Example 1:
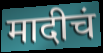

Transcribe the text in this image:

मादीचं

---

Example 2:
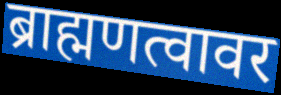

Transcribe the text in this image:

ब्राह्मणत्वावर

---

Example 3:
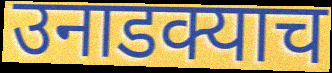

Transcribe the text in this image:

उनाडक्याच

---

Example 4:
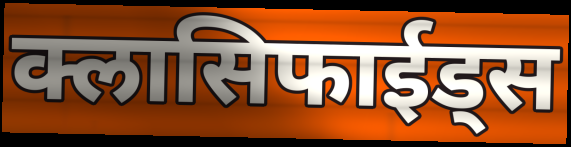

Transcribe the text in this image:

क्लासिफाईड्स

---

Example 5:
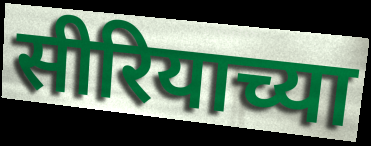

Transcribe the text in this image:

सीरियाच्या